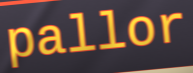
pallor